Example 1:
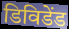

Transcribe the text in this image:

डिविडेंड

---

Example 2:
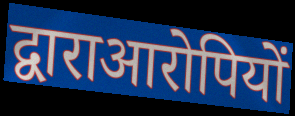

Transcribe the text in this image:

द्वाराआरोपियों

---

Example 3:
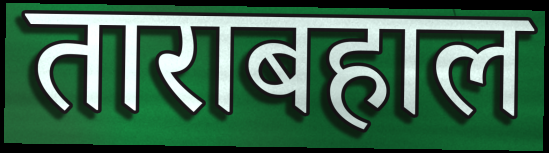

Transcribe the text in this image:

ताराबहाल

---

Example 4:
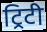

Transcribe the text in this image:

ट्रिटी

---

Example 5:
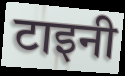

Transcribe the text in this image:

टाइनी